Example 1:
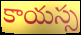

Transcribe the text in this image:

కాయస్స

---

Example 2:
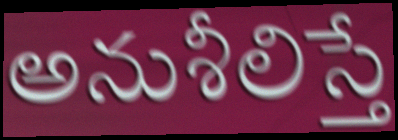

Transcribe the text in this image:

అనుశీలిస్తే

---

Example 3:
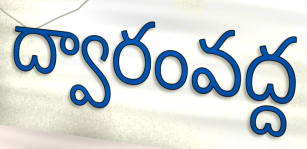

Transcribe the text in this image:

ద్వారంవద్ద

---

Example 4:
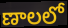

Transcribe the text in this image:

ణాలలో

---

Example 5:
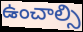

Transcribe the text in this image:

ఉంచాల్సి